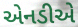
એનડીએ